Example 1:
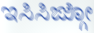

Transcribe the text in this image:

ಇಸಿಸಿಙ್ಗೋ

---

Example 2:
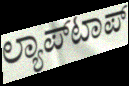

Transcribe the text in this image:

ಲ್ಯಾಪ್‌ಟಾಪ್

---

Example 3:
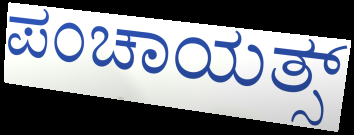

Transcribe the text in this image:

ಪಂಚಾಯತ್ಸ್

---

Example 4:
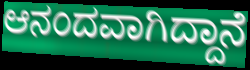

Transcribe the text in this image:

ಆನಂದವಾಗಿದ್ದಾನೆ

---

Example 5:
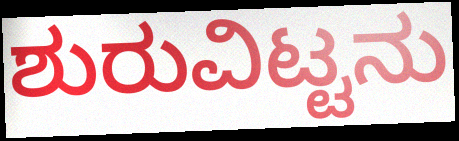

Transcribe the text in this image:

ಶುರುವಿಟ್ಟನು